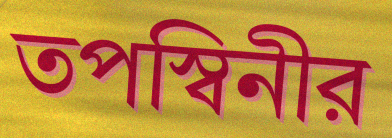
তপস্বিনীর